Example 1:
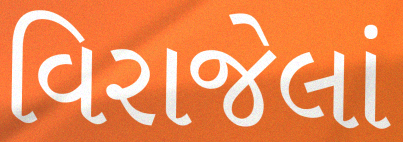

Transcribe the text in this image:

વિરાજેલાં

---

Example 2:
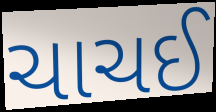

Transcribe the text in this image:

ચાચઈ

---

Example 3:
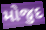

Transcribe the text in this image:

મોજુદ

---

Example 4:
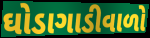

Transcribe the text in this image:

ઘોડાગાડીવાળો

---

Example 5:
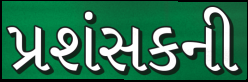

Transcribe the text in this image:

પ્રશંસકની